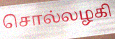
சொல்லழகி